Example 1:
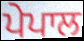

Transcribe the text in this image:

ਪੇਪਾਲ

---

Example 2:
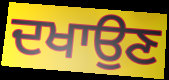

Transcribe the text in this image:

ਦਖਾਉਣ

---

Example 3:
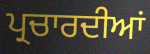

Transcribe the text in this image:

ਪ੍ਰਚਾਰਦੀਆਂ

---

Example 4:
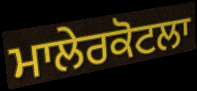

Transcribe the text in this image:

ਮਾਲੇਰਕੋਟਲਾ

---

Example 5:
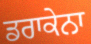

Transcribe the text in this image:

ਡਰਾਕੇਨਾ